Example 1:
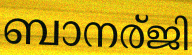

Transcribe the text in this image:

ബാനര്ജി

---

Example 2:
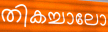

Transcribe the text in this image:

തികച്ചാലോ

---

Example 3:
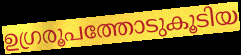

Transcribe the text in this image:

ഉഗ്രരൂപത്തോടുകൂടിയ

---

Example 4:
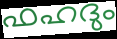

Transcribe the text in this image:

ഫഹദും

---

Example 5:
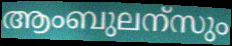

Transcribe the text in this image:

ആംബുലന്സും